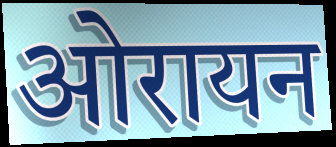
ओरायन